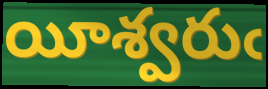
యీశ్వరుఁ